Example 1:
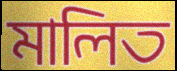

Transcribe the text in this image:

মালিত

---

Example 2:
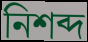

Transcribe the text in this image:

নিশব্দ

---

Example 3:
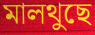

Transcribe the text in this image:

মালথুছে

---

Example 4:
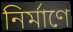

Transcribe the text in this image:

নিৰ্মাণে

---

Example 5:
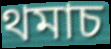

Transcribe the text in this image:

থমাচ